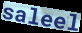
saleel